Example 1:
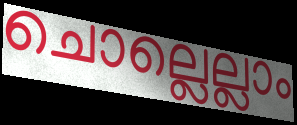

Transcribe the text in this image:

ചൊല്ലെല്ലാം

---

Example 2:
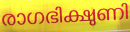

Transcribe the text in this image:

രാഗഭിക്ഷുണി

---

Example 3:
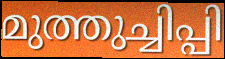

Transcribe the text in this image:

മുത്തുച്ചിപ്പി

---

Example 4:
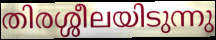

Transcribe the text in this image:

തിരശ്ശീലയിടുന്നു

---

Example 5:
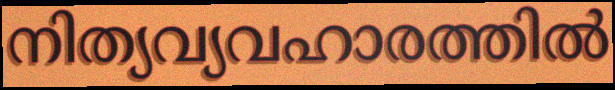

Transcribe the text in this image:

നിത്യവ്യവഹാരത്തിൽ